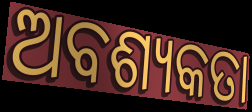
ଅବଶ୍ୟକତା